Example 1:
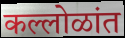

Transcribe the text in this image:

कल्लोळांत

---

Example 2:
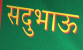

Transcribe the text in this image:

सदुभाऊ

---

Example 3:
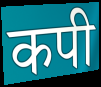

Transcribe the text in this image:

कपी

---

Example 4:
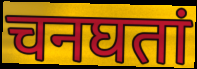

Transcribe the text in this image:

चनघतां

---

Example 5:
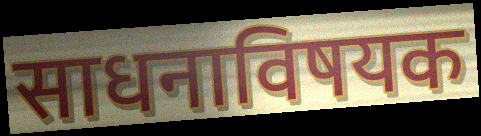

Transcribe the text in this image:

साधनाविषयक